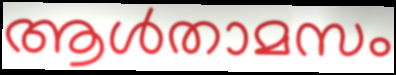
ആൾതാമസം